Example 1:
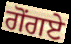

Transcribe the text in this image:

ਗੋਂਗਏ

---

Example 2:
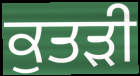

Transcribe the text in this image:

ਕੁਤੜੀ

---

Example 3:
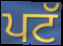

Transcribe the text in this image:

ਪਟੱ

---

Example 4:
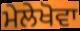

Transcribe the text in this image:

ਮੇਲੇਖੋਵਾ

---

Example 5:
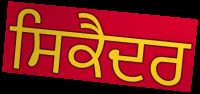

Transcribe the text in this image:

ਸਿਕੈਦਰ